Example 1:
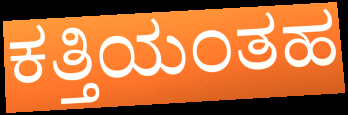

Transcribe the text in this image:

ಕತ್ತಿಯಂತಹ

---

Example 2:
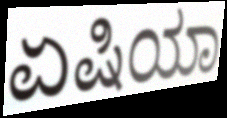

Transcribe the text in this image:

ಏಷಿಯಾ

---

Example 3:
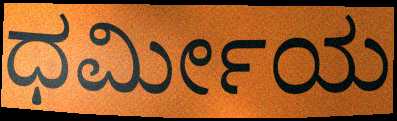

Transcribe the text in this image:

ಧರ್ಮೀಯ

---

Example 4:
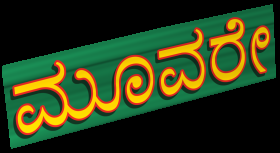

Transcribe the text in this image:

ಮೂವರೇ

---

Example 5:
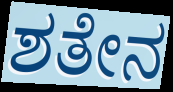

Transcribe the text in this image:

ಶತೇನ